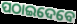
ପଠାଇଦେବେ